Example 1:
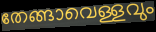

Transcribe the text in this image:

തേങ്ങാവെള്ളവും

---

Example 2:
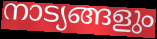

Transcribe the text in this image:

നാട്യങ്ങളും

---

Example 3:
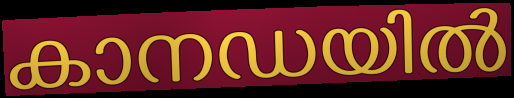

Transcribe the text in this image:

കാനഡയിൽ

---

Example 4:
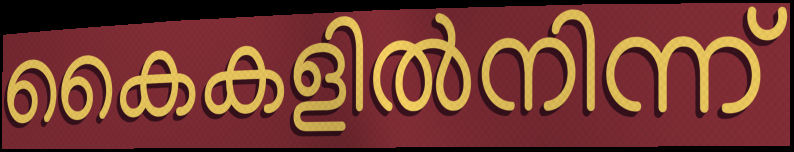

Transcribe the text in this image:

കൈകളിൽനിന്ന്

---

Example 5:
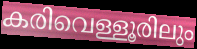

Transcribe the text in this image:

കരിവെള്ളൂരിലും